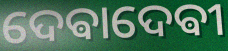
ଦେଵାଦେଵୀ